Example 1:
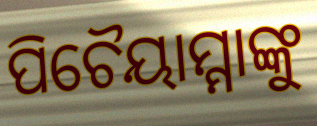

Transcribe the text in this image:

ପିଚୈୟାମ୍ମାଙ୍କୁ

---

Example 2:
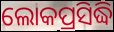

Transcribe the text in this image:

ଲୋକପ୍ରସିଦ୍ଧି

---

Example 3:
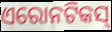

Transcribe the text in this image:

ଏରୋନଟିକସ୍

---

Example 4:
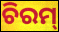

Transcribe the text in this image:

ଚିରମ୍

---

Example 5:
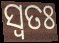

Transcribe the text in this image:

ସ୍ଵତଃ